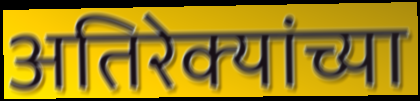
अतिरेक्‍यांच्या